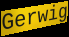
Gerwig